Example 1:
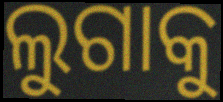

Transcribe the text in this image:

ଲୁଗାକୁ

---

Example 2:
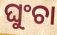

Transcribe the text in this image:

ଘୁଂଚା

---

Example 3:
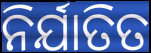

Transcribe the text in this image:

ନିର୍ଯାତିତ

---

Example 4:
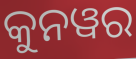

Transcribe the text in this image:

କୁନୱର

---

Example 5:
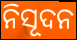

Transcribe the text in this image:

ନିସୂଦନ